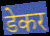
डेकर